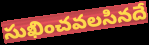
సుఖించవలసినదే